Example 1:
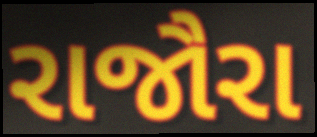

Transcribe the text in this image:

રાજૌરા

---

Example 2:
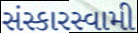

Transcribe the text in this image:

સંસ્કારસ્વામી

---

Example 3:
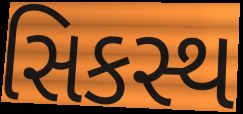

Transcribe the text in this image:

સિકસ્થ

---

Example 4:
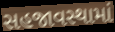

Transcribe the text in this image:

સહજાવસ્થામાં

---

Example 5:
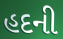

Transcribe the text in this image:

હદની